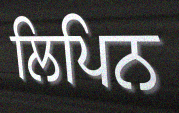
ਲਿਪਿਨ